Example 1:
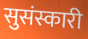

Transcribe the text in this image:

सुसंस्कारी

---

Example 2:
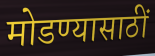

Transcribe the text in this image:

मोडण्यासाठीं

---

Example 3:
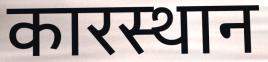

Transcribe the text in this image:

कारस्थान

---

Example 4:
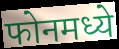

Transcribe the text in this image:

फोनमध्ये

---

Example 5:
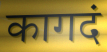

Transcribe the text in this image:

कागदं